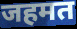
जहमत